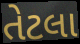
તેટલા